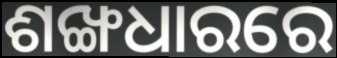
ଶଙ୍ଖଧାରରେ